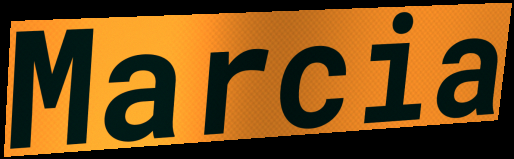
Marcia